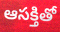
ఆసక్తితో